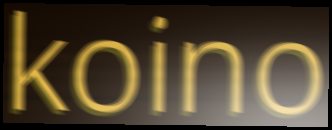
koino